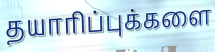
தயாரிப்புக்களை